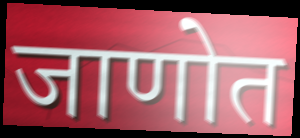
जाणोत